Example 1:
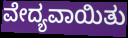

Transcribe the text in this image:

ವೇದ್ಯವಾಯಿತು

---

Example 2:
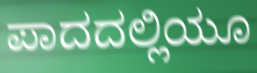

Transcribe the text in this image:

ಪಾದದಲ್ಲಿಯೂ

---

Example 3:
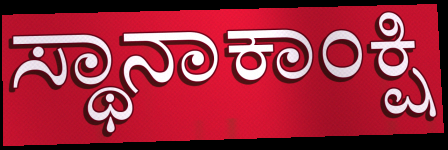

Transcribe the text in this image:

ಸ್ಥಾನಾಕಾಂಕ್ಷಿ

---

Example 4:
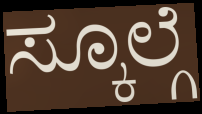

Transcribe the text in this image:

ಸ್ಕೂಲ್ಗೆ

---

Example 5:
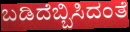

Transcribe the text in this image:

ಬಡಿದೆಬ್ಬಿಸಿದಂತೆ